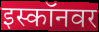
इस्कॉनवर